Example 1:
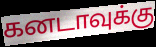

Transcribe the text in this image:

கனடாவுக்கு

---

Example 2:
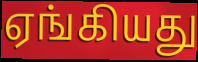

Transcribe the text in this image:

ஏங்கியது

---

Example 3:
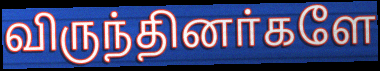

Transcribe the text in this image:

விருந்தினர்களே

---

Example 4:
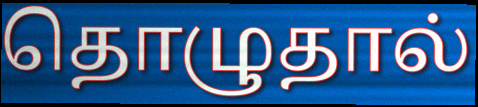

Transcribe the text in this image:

தொழுதால்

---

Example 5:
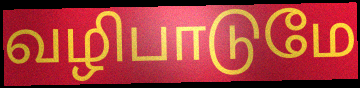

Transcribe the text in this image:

வழிபாடுமே